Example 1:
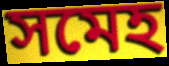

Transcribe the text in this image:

সমেহ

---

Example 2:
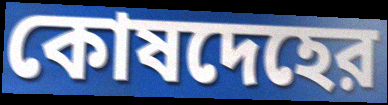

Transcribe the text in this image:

কোষদেহের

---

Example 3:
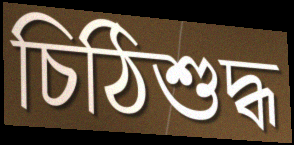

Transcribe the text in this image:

চিঠিশুদ্ধ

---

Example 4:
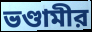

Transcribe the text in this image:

ভণ্ডামীর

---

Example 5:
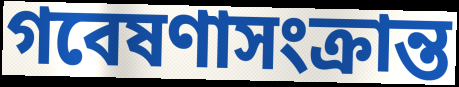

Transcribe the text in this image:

গবেষণাসংক্রান্ত